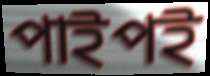
পাইপই